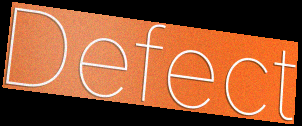
Defect